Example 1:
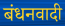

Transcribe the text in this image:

बंधनवादी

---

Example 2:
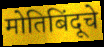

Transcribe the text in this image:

मोतिबिंदूचे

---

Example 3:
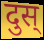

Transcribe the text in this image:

दुस्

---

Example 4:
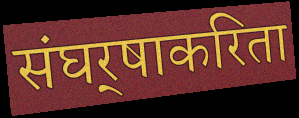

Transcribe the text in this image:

संघर्षाकरिता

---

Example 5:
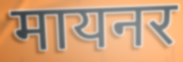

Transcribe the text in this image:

मायनर